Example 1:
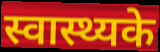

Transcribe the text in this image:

स्वास्थ्यके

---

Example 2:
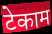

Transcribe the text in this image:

टेकाम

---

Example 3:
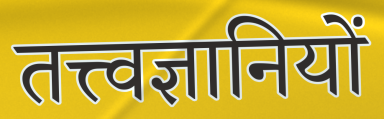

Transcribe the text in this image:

तत्त्वज्ञानियों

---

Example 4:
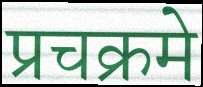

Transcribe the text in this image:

प्रचक्रमे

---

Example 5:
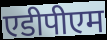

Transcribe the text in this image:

एडीपीएम